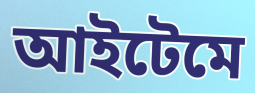
আইটেমে